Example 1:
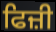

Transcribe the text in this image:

ਫਿਜ਼ੀ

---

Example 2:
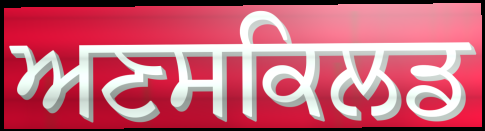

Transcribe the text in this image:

ਅਣਸਕਿਲਡ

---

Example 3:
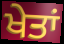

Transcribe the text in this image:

ਖੇਤਾਂ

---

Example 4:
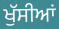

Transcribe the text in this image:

ਖੁੱਸੀਆਂ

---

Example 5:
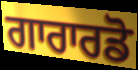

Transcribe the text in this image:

ਗਾਰਾਰਡੋ